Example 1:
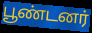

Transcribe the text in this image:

பூண்டனர்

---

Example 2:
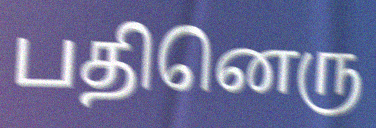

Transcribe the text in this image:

பதினெரு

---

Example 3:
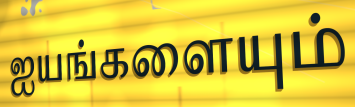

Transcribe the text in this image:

ஐயங்களையும்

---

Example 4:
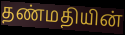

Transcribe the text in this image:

தண்மதியின்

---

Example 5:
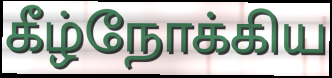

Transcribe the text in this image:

கீழ்நோக்கிய